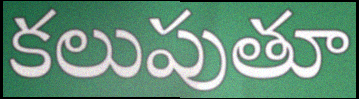
కలుపుతూ